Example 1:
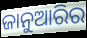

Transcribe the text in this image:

ଜାନୁଆରିର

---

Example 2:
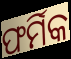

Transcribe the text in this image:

ଫର୍ମିକ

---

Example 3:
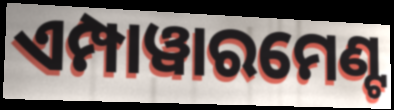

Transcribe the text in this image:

ଏମ୍ପାୱାରମେଣ୍ଟ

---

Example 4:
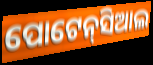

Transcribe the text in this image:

ପୋଟେନ୍‌ସିଆଲ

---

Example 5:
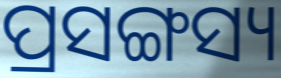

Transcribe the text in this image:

ପ୍ରସଙ୍ଗସ୍ୟ